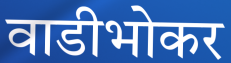
वाडीभोकर